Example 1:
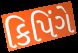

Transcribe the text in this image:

કિપિંગે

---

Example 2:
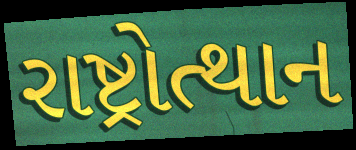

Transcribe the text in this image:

રાષ્ટ્રોત્થાન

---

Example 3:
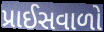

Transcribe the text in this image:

પ્રાઈસવાળો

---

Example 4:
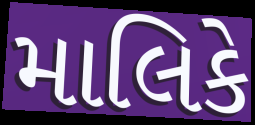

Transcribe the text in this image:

માલિકે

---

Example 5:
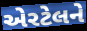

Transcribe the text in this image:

એરટેલને